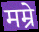
मम्रे